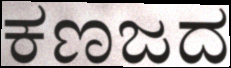
ಕಣಜದ